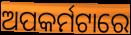
ଅପକର୍ମଟାରେ